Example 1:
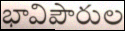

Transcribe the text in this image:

భావిపౌరుల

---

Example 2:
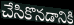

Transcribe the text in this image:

చేసికొనడానికి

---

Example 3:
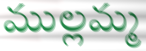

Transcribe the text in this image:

ముల్లమ్మ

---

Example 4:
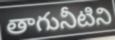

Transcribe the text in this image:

తాగునీటిని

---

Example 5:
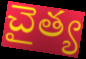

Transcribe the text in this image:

చైత్య